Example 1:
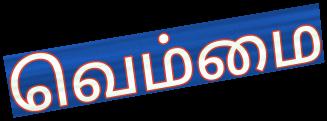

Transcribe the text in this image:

வெம்மை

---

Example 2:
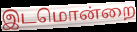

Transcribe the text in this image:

இடமொன்றை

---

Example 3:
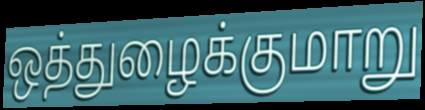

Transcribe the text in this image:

ஒத்துழைக்குமாறு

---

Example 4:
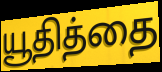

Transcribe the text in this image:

யூதித்தை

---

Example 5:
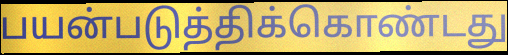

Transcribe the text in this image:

பயன்படுத்திக்கொண்டது